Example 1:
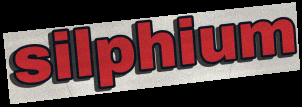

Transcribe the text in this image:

silphium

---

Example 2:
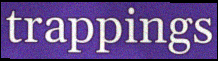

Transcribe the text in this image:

trappings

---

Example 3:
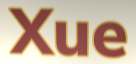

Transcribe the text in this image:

Xue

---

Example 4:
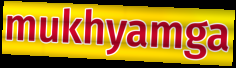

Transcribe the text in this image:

mukhyamga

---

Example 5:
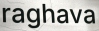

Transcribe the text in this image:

raghava